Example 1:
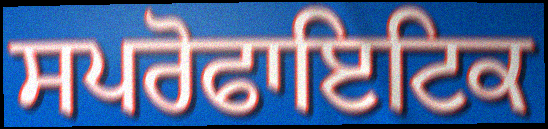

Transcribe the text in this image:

ਸਪਰੋਫਾਇਟਿਕ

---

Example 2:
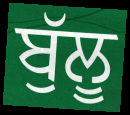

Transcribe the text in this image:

ਬੁੱਲੂ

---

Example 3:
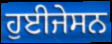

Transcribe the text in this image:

ਹੁਈਜੇਸਨ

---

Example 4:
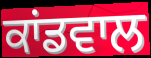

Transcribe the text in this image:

ਕਾਂਡਵਾਲ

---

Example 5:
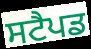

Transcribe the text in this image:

ਸਟੈਪਡ